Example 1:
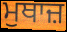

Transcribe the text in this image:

ਮੁਥਾਜ਼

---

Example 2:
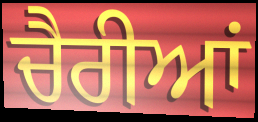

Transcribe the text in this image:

ਚੈਰੀਆਂ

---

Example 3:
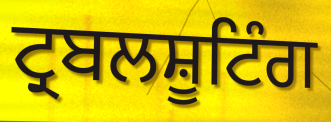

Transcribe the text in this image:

ਟ੍ਰਬਲਸ਼ੂਟਿੰਗ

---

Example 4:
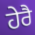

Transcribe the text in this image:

ਹੇਰੈ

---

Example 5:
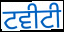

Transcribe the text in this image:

ਟਵੀਟੀ